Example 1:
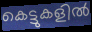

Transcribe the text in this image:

കെട്ടുകളിൽ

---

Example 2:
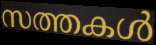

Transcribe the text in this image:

സത്തകൾ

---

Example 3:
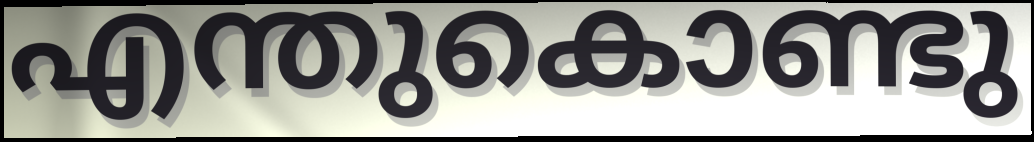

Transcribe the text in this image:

എന്തുകൊണ്ടു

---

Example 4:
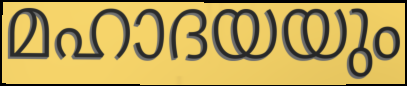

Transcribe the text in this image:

മഹാദയയും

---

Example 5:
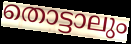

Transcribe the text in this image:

തൊട്ടാലും